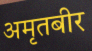
अमृतबीर